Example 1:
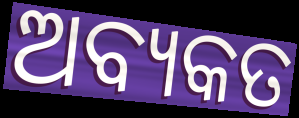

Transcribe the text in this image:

ଅବ୍ୟକତ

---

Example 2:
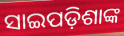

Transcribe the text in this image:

ସାଇପଡ଼ିଶାଙ୍କ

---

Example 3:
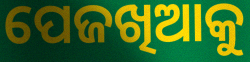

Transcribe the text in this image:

ପେଜଖିଆକୁ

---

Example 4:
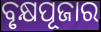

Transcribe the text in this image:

ବୃକ୍ଷପୂଜାର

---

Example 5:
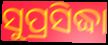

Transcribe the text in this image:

ସୁପ୍ରସିଦ୍ଧା